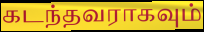
கடந்தவராகவும்